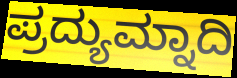
ಪ್ರದ್ಯುಮ್ನಾದಿ